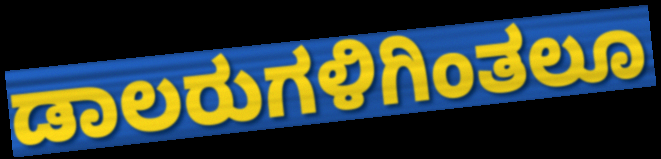
ಡಾಲರುಗಳಿಗಿಂತಲೂ